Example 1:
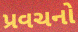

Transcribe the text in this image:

પ્રવચનો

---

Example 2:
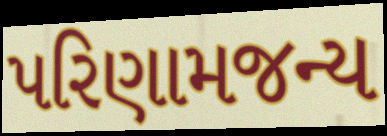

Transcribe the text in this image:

પરિણામજન્ય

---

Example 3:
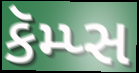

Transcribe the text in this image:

કૅમ્પ્સ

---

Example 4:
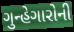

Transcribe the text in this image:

ગુન્હેગારોની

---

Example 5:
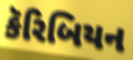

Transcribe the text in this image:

કૅરિબિયન